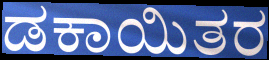
ಡಕಾಯಿತರ